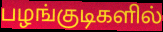
பழங்குடிகளில்